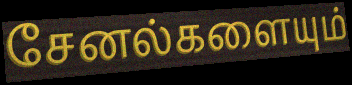
சேனல்களையும்